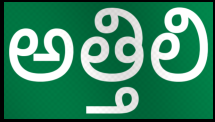
అత్తిలి